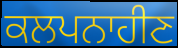
ਕਲਪਨਾਹੀਣ